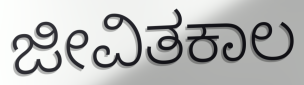
ಜೀವಿತಕಾಲ